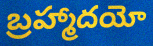
బ్రహ్మాదయో